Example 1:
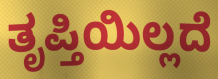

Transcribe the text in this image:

ತೃಪ್ತಿಯಿಲ್ಲದೆ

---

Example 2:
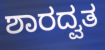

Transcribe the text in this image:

ಶಾರದ್ವತ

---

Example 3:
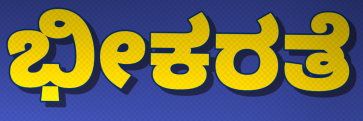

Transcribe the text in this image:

ಭೀಕರತೆ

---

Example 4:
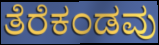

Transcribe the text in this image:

ತೆರೆಕಂಡವು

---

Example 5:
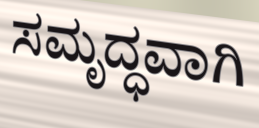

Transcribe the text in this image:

ಸಮೃದ್ಧವಾಗಿ